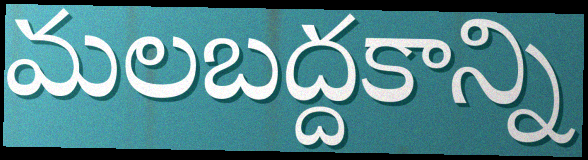
మలబద్దకాన్ని